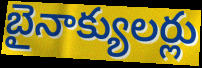
బైనాక్యులర్లు